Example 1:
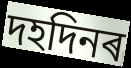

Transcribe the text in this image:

দহদিনৰ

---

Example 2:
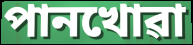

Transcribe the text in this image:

পানখোৱা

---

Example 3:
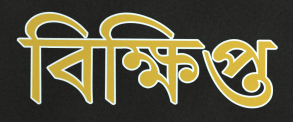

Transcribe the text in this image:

বিক্ষিপ্ত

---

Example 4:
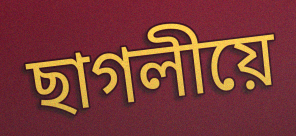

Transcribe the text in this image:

ছাগলীয়ে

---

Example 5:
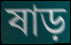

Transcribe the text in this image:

ষাড়